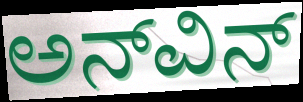
ಅನ್‌ವಿನ್